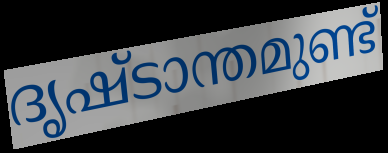
ദൃഷ്ടാന്തമുണ്ട്